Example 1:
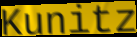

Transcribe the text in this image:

Kunitz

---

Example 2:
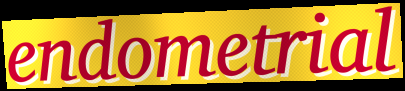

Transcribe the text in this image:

endometrial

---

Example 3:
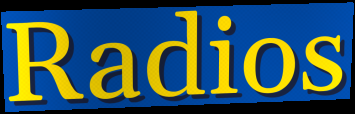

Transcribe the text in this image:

Radios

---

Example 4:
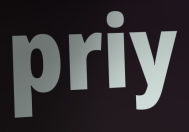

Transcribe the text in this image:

priy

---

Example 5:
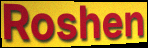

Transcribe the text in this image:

Roshen